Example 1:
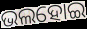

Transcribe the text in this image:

ଭଲହୋଇ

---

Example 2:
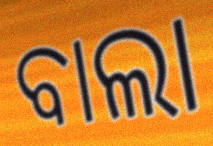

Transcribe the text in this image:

ବାଲା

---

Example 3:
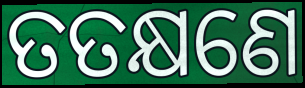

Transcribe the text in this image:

ତତକ୍ଷଣେ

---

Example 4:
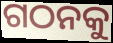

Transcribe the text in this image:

ଗଠନକୁ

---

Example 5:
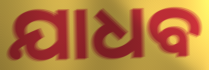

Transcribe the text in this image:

ଯାଧବ